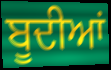
ਬੂਦੀਆਂ